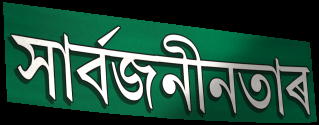
সাৰ্বজনীনতাৰ